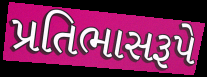
પ્રતિભાસરૂપે